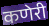
कणेरी